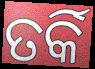
ତର୍କି